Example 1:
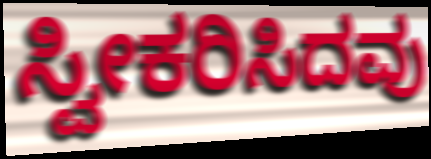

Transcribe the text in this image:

ಸ್ವೀಕರಿಸಿದವು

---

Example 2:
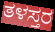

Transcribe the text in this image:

ತಳಸ್ತರ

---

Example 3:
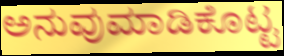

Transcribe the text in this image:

ಅನುವುಮಾಡಿಕೊಟ್ಟ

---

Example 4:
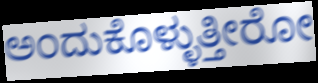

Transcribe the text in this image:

ಅಂದುಕೊಳ್ಳುತ್ತೀರೋ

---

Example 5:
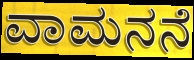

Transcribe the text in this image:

ವಾಮನನೆ